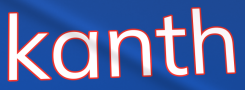
kanth